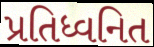
પ્રતિધ્વનિત